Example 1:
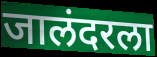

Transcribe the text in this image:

जालंदरला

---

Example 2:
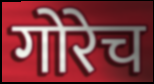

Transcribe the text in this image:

गोरेच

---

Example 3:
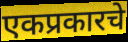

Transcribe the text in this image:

एकप्रकारचे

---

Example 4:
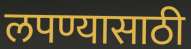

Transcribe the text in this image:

लपण्यासाठी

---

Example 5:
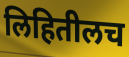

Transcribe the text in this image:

लिहितीलच